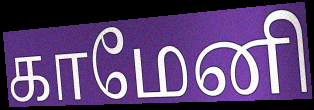
காமேனி